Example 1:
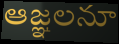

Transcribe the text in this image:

ఆజ్ఞలనూ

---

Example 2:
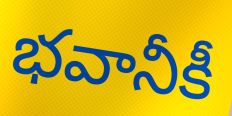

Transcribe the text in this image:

భవానీకీ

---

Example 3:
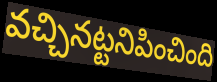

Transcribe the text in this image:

వచ్చినట్టనిపించింది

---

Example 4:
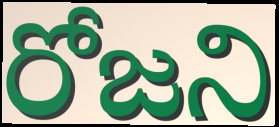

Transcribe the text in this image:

రోజని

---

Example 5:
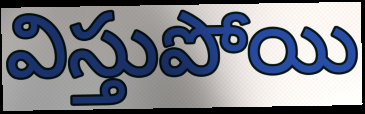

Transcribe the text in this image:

విస్తుపోయి